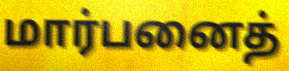
மார்பனைத்